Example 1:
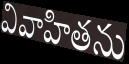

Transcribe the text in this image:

వివాహితను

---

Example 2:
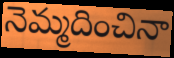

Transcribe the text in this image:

నెమ్మదించినా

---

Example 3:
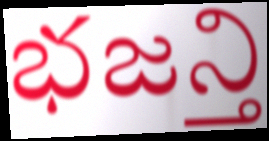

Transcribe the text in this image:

భజన్తి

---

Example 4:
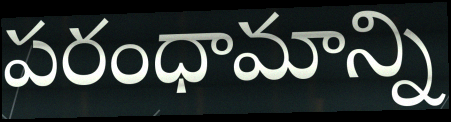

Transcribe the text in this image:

పరంధామాన్ని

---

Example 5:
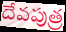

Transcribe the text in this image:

దేవపుత్ర